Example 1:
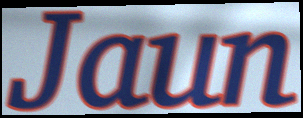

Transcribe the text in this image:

Jaun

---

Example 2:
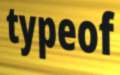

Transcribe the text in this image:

typeof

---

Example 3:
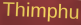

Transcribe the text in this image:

Thimphu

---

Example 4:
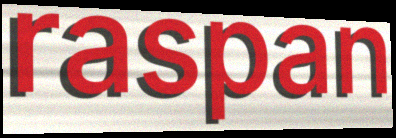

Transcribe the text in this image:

raspan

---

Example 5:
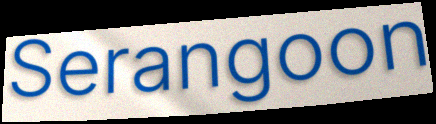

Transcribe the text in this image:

Serangoon